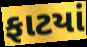
ફાટયાં